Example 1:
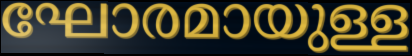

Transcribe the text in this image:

ഘോരമായുള്ള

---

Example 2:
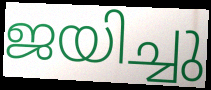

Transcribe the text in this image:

ജയിച്ചു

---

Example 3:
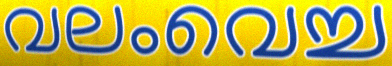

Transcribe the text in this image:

വലംവെച്ച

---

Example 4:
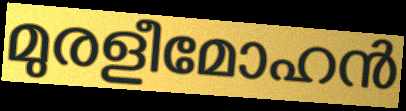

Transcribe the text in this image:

മുരളീമോഹൻ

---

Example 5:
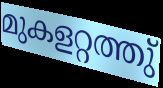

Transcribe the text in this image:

മുകളറ്റത്തു്